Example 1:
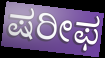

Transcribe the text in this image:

ಷರೀಫ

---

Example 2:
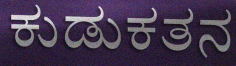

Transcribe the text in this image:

ಕುಡುಕತನ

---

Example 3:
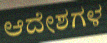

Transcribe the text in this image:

ಆದೇಶಗಳ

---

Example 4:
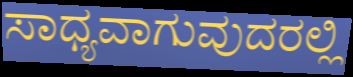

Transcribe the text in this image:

ಸಾಧ್ಯವಾಗುವುದರಲ್ಲಿ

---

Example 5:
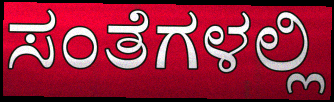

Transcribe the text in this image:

ಸಂತೆಗಳಲ್ಲಿ